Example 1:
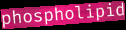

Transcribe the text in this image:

phospholipid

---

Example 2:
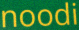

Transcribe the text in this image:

noodi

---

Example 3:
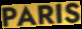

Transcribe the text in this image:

PARIS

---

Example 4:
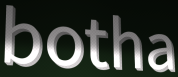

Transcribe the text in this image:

botha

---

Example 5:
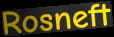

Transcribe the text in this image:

Rosneft